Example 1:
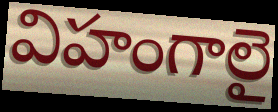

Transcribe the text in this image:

విహంగాలై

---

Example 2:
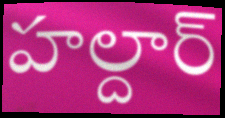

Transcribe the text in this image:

హల్దార్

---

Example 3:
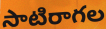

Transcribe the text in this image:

సాటిరాగల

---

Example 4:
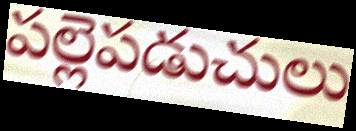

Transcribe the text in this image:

పల్లెపడుచులు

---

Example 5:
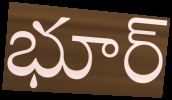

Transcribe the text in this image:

భూర్